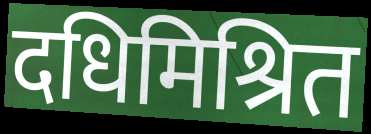
दधिमिश्रित